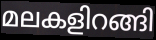
മലകളിറങ്ങി